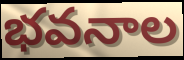
భవనాల